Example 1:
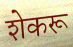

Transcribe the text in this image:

शेकरू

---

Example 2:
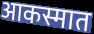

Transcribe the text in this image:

आकस्मात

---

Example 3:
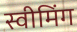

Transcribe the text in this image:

स्वीमिंग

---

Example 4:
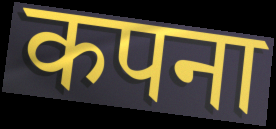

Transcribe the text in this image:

कपना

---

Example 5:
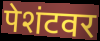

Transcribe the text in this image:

पेशंटवर